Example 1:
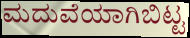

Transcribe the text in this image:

ಮದುವೆಯಾಗಿಬಿಟ್ಟ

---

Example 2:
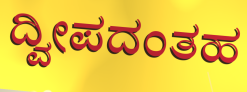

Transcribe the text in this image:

ದ್ವೀಪದಂತಹ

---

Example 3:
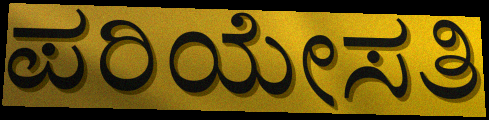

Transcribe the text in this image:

ಪರಿಯೇಸತಿ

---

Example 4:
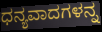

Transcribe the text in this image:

ಧನ್ಯವಾದಗಳನ್ನ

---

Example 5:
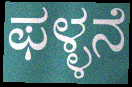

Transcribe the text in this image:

ಫಳ್ಳನೆ